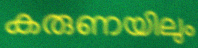
കരുണയിലും